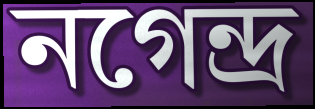
নগেন্দ্র